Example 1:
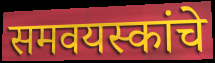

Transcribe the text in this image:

समवयस्कांचे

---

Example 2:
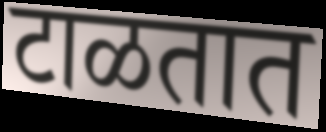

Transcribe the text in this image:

टाळतात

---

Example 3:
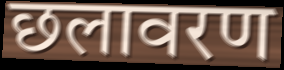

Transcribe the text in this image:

छलावरण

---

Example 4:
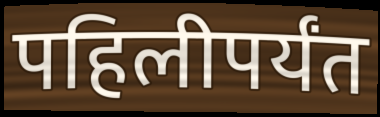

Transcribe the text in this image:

पहिलीपर्यंत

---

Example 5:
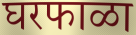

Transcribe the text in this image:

घरफाळा